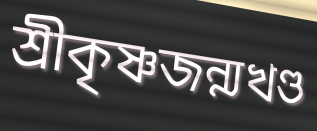
শ্রীকৃষ্ণজন্মখণ্ড